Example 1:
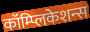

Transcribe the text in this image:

कॉम्प्लिकेशन्स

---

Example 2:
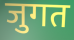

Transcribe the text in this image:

जुगत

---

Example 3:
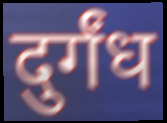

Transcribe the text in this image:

दुर्गंध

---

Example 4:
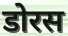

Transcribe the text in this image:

डोरस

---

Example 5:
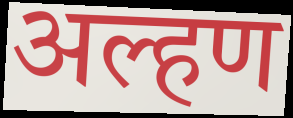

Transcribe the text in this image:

अल्हण